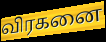
விரகனை